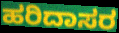
ಹರಿದಾಸರ